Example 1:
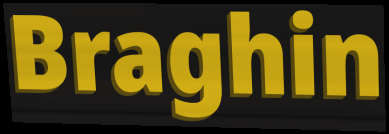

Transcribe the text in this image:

Braghin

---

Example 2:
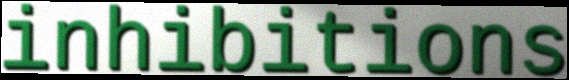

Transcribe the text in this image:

inhibitions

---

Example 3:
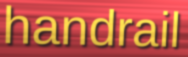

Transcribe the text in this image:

handrail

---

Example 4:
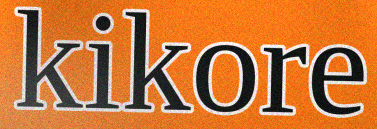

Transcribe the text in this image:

kikore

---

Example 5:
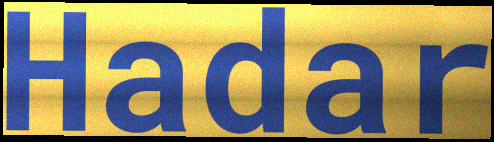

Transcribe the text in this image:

Hadar